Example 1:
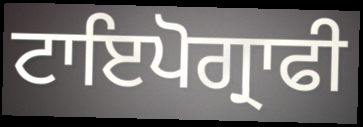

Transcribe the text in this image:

ਟਾਇਪੋਗ੍ਰਾਫੀ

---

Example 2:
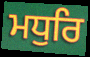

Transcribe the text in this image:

ਮਧੁਰਿ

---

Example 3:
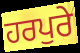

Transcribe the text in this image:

ਹਰਪੁਰੇ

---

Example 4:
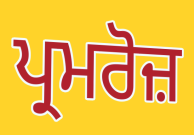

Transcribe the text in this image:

ਪ੍ਰਮਰੋਜ਼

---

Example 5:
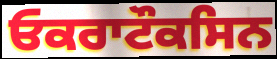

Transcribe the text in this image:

ਓਕਰਾਟੌਕਸਿਨ